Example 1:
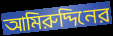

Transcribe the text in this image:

আমিরুদ্দিনের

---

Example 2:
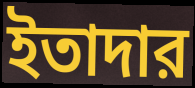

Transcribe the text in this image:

ইতাদার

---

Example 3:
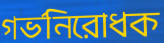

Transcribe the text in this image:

গর্ভনিরোধক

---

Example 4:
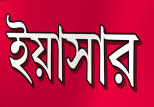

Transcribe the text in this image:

ইয়াসার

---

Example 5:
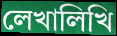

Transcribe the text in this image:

লেখালিখি